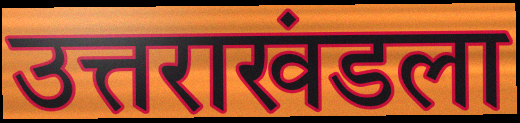
उत्तराखंडला